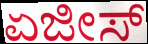
ಏಜೀಸ್